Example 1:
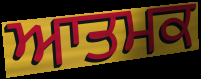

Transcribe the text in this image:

ਆਤਮਕ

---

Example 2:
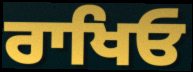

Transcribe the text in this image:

ਰਾਖਿਓ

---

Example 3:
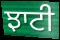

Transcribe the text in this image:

ਝਾਟੀ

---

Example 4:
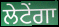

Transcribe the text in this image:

ਲੇਟੇਂਗਾ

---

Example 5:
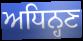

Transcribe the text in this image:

ਅਧਿਨ੍ਹਣ